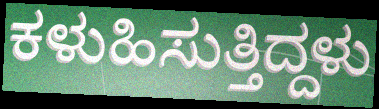
ಕಳುಹಿಸುತ್ತಿದ್ದಳು